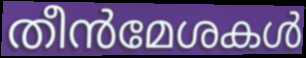
തീൻമേശകൾ